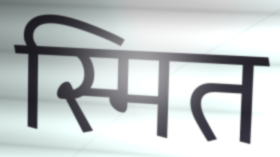
स्मित